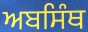
ਅਬਸਿੰਥ